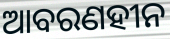
ଆବରଣହୀନ